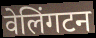
वेलिंगटन